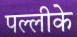
पल्लीके